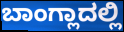
ಬಾಂಗ್ಲಾದಲ್ಲಿ